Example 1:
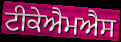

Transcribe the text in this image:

ਟੀਕੇਐਮਐਸ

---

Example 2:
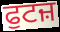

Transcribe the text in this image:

ਫੁਟਜ਼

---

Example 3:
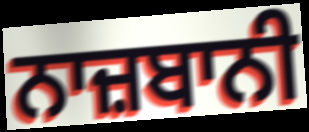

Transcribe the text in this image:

ਨਾਜ਼ਬਾਨੀ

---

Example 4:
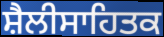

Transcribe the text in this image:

ਸ਼ੈਲੀਸਾਹਿਤਕ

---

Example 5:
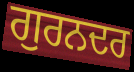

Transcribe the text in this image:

ਗੁਰਨਦਰ